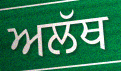
ਅਲੱਥ